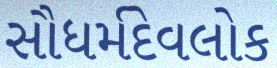
સૌધર્મદેવલોક